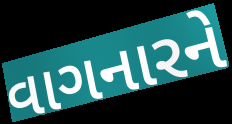
વાગનારને